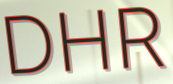
DHR